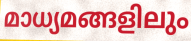
മാധ്യമങ്ങളിലും